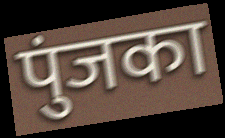
पुंजका